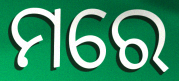
ମରେ